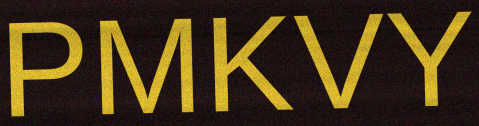
PMKVY